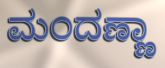
ಮಂದಣ್ಣಾ